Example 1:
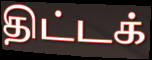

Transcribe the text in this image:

திட்டக்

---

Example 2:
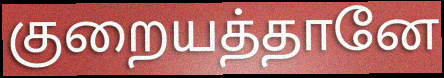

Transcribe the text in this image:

குறையத்தானே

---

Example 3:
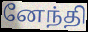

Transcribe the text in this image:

னேந்தி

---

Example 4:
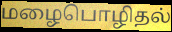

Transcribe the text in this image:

மழைபொழிதல்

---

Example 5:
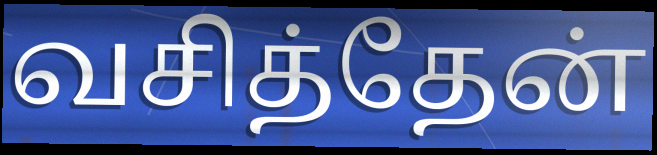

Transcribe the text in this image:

வசித்தேன்